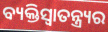
ବ୍ୟକ୍ତିସ୍ୱାତନ୍ତ୍ର୍ୟର